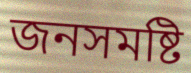
জনসমষ্টি